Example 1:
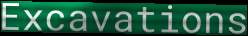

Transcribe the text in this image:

Excavations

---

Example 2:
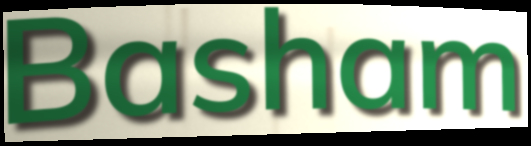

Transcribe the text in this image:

Basham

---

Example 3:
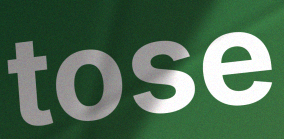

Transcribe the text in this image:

tose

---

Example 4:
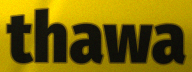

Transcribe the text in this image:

thawa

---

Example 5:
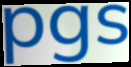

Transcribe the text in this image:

pgs